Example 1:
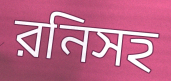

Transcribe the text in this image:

রনিসহ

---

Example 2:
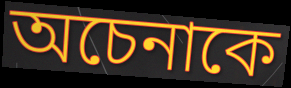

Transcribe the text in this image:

অচেনাকে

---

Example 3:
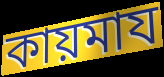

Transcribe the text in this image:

কায়মায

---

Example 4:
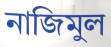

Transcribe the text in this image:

নাজিমুল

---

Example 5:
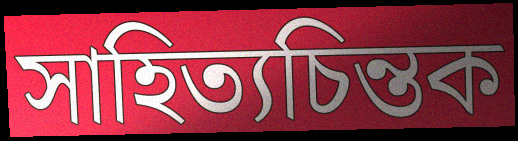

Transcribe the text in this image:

সাহিত্যচিন্তক